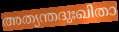
അത്യന്തദുഃഖിതാ